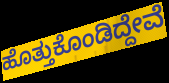
ಹೊತ್ತುಕೊಂಡಿದ್ದೇವೆ